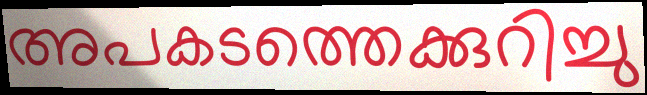
അപകടത്തെക്കുറിച്ചു